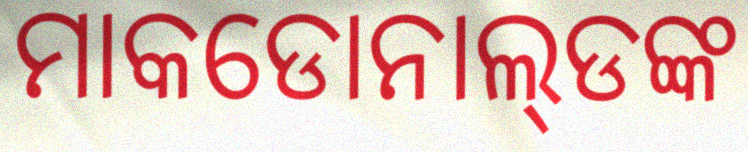
ମାକଡୋନାଲ୍‍ଡଙ୍କ